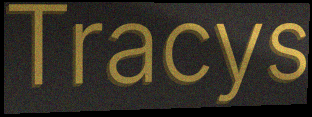
Tracys